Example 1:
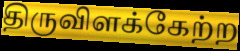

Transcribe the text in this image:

திருவிளக்கேற்ற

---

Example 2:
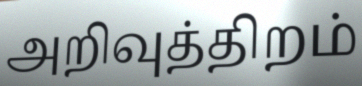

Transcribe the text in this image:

அறிவுத்திறம்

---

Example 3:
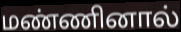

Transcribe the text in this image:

மண்ணினால்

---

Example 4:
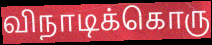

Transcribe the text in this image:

விநாடிக்கொரு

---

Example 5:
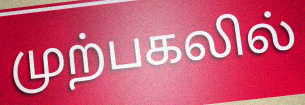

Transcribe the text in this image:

முற்பகலில்